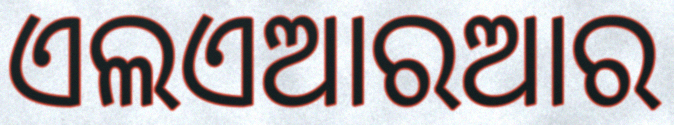
ଏଲଏଆରଆର